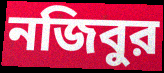
নজিবুর